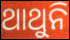
ଥାଥୁନି